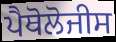
ਪੈਥੋਲੋਜੀਸ